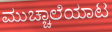
ಮುಚ್ಚಾಲೆಯಾಟ